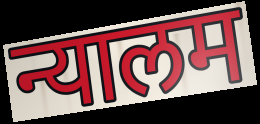
न्यालम